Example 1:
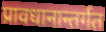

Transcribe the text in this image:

प्रावधानान्तर्गत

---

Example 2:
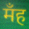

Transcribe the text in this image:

मँह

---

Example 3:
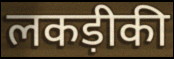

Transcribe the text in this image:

लकड़ीकी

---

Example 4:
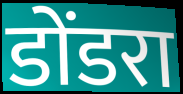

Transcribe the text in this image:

डोंडरा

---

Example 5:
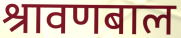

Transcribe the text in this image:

श्रावणबाल